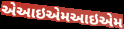
એઆઇએમઆઇએમ